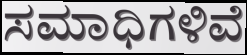
ಸಮಾಧಿಗಳಿವೆ